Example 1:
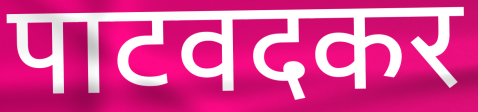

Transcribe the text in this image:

पाटवदकर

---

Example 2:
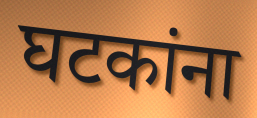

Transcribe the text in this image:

घटकांना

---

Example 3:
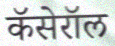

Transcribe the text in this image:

कॅसेरॉल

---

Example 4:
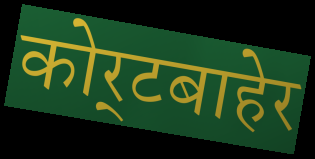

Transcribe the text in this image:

कोर्टबाहेर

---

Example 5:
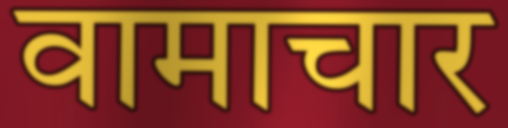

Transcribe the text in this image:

वामाचार